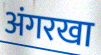
अंगरखा